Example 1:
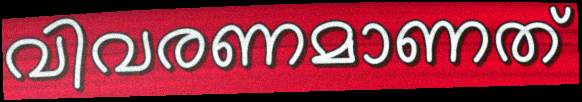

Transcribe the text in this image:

വിവരണമാണത്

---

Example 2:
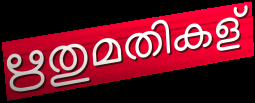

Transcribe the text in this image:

ഋതുമതികള്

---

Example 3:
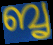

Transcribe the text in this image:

ബൃ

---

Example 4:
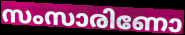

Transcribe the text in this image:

സംസാരിണോ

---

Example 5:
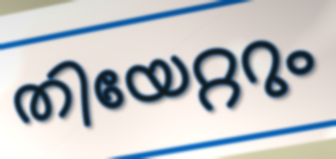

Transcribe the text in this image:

തിയേറ്ററും